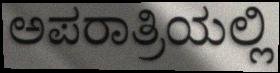
ಅಪರಾತ್ರಿಯಲ್ಲಿ